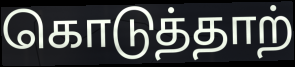
கொடுத்தாற்